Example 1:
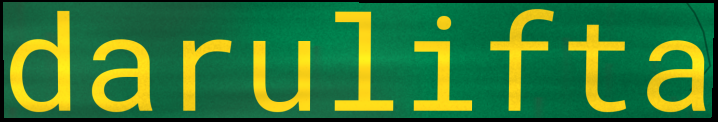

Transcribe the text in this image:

darulifta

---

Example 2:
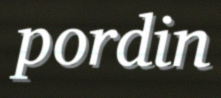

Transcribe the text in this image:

pordin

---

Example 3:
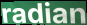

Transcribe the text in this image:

radian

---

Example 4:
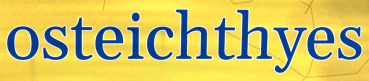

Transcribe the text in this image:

osteichthyes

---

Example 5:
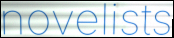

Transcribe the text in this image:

novelists